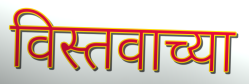
विस्तवाच्या